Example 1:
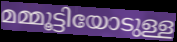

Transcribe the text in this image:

മമ്മൂട്ടിയോടുള്ള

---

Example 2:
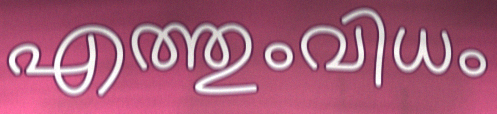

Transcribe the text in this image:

എത്തുംവിധം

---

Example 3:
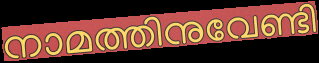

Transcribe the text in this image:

നാമത്തിനുവേണ്ടി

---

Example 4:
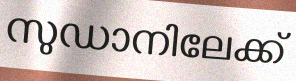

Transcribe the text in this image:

സുഡാനിലേക്ക്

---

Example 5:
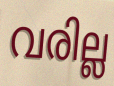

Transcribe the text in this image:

വരില്ല